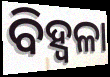
ବିହ୍ଵଳା